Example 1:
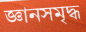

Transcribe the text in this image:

জ্ঞানসমৃদ্ধ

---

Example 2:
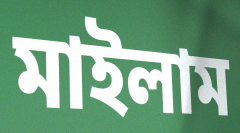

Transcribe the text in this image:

মাইলাম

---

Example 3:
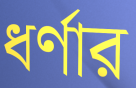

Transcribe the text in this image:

ধর্ণার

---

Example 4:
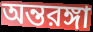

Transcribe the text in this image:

অন্তরঙ্গা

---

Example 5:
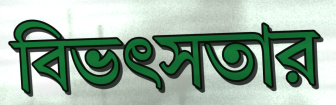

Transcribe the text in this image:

বিভৎসতার